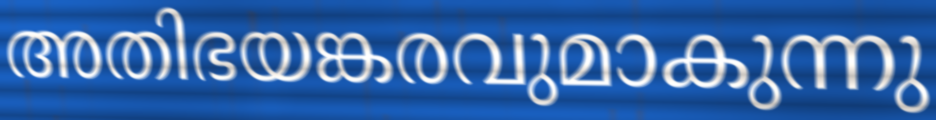
അതിഭയങ്കരവുമാകുന്നു